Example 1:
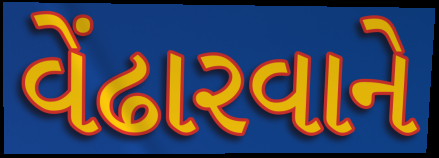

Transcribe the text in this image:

વેંઢારવાને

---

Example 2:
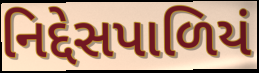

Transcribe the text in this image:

નિદ્દેસપાળિયં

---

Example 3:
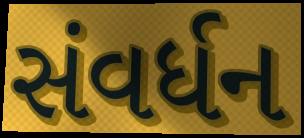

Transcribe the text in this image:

સંવર્ધન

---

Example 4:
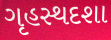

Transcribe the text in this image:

ગૃહસ્થદશા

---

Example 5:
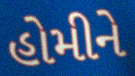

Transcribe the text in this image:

હોમીને